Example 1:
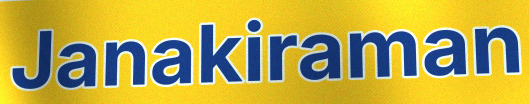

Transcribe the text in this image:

Janakiraman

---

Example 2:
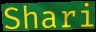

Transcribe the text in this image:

Shari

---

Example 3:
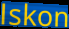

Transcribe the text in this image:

Iskon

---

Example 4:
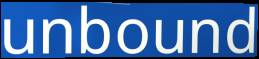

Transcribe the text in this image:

unbound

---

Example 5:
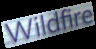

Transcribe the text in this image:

Wildfire